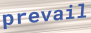
prevail